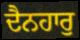
ਦੈਨਹਾਰੁ